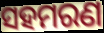
ସହମରଣ